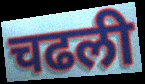
चढली